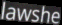
lawshe